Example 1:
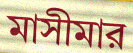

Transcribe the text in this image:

মাসীমার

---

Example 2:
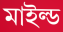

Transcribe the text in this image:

মাইল্ড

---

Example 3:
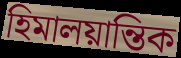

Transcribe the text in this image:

হিমালয়ান্তিক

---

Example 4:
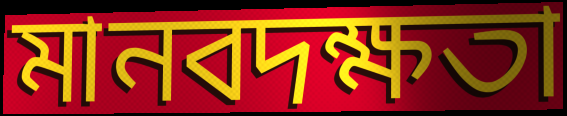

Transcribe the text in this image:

মানবদক্ষতা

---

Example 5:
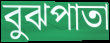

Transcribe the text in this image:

বুঝপাতা